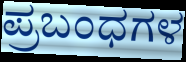
ಪ್ರಬಂಧಗಳ